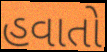
હવાતો